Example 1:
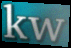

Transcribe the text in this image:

kw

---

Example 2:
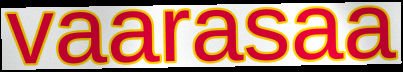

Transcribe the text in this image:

vaarasaa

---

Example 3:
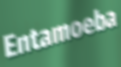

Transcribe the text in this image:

Entamoeba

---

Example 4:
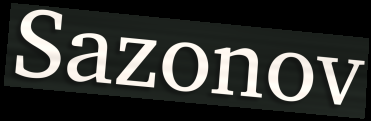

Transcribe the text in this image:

Sazonov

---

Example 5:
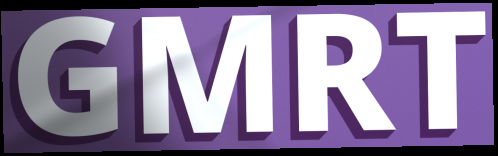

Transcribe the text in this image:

GMRT